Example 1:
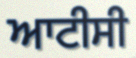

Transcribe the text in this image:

ਆਟੀਸੀ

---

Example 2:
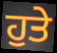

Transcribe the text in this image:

ਹੁਤੇ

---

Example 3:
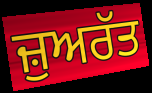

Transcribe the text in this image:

ਜ਼ੁਅਰੱਤ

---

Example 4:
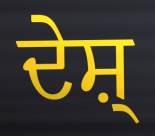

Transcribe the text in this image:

ਦੇਸ਼੍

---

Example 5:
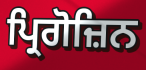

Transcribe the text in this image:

ਪ੍ਰਿਗੋਜ਼ਿਨ